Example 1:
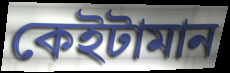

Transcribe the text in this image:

কেইটামান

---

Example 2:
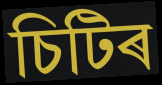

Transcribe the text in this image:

চিটিৰ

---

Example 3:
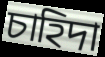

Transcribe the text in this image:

চাহিদা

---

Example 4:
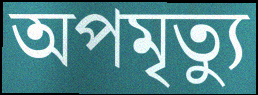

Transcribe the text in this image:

অপমৃত্যু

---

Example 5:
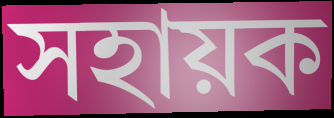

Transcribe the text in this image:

সহায়ক